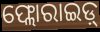
ଫ୍ଲୋରାଇଡ଼୍